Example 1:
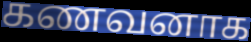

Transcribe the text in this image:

கணவனாக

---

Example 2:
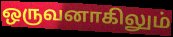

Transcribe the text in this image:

ஒருவனாகிலும்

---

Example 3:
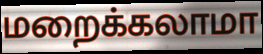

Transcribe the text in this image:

மறைக்கலாமா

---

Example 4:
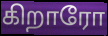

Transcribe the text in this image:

கிறாரோ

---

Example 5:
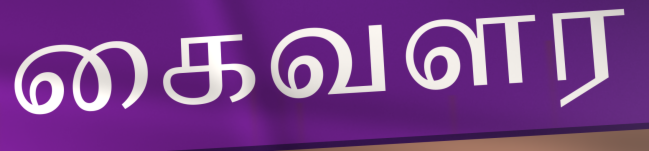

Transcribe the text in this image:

கைவளர